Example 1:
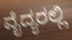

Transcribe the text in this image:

ವೈದ್ಯರಲ್ಲಿ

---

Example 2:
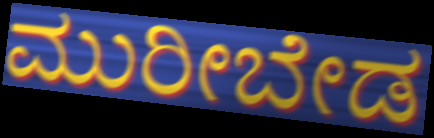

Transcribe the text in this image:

ಮುರೀಬೇಡ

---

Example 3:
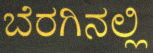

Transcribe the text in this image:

ಬೆರಗಿನಲ್ಲಿ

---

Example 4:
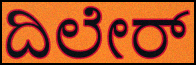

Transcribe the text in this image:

ದಿಲೇರ್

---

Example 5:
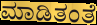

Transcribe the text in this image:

ಮಾಡಿತಂತೆ